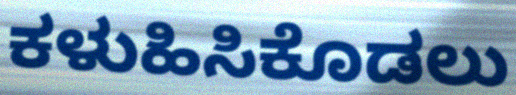
ಕಳುಹಿಸಿಕೊಡಲು